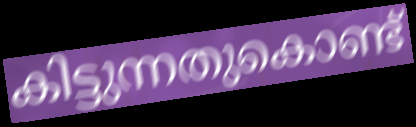
കിട്ടുന്നതുകൊണ്ട്